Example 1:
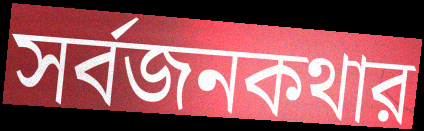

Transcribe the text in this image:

সর্বজনকথার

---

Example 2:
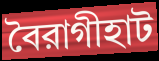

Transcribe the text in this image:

বৈরাগীহাট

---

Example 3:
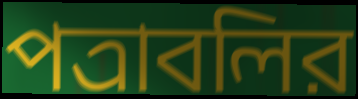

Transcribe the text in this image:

পত্রাবলির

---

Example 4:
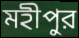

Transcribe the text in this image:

মহীপুর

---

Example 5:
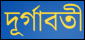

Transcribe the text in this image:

দূর্গাবতী